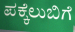
ಪಕ್ಕೆಲುಬಿಗೆ